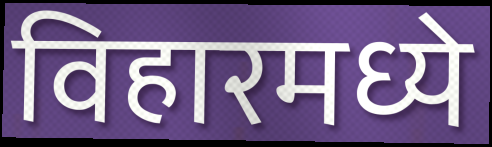
विहारमध्ये